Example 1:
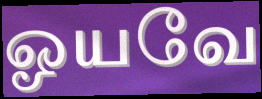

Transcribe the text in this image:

ஓயவே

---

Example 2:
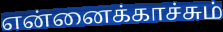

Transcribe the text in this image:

என்னைக்காச்சும்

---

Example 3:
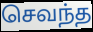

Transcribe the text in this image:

செவந்த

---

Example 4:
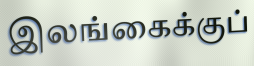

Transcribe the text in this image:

இலங்கைக்குப்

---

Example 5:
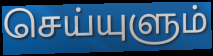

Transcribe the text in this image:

செய்யுளும்